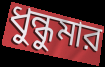
ধুন্ধুমার